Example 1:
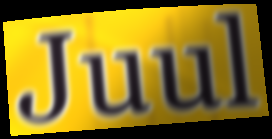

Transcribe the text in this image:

Juul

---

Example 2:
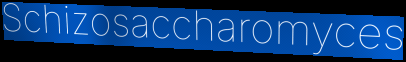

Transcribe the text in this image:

Schizosaccharomyces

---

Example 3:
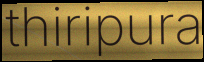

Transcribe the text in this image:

thiripura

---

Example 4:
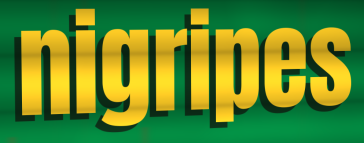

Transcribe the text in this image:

nigripes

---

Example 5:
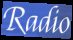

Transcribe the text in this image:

Radio